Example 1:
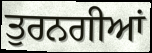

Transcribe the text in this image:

ਤੁਰਨਗੀਆਂ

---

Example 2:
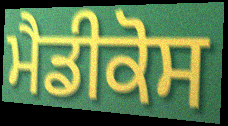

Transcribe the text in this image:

ਮੈਡੀਕੋਸ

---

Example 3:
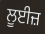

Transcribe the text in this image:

ਲੂਈਜ਼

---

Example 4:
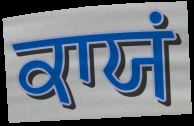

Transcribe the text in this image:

ਕਾਯਂ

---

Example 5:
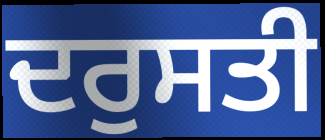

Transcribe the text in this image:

ਦਰੁਸਤੀ